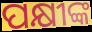
ପକ୍ଷୀଙ୍କ